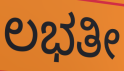
ಲಭತೀ